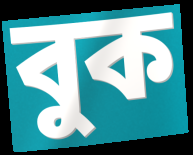
বুক